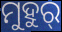
ମୁହୁର୍